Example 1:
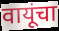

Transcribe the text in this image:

वायूंचा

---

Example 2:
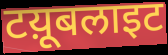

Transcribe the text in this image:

टय़ूबलाइट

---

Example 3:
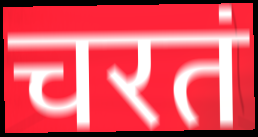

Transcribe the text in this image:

चरतं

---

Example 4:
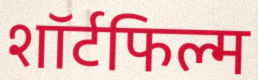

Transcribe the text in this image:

शॉर्टफिल्म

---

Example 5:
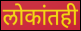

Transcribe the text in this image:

लोकांतही